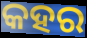
କହର